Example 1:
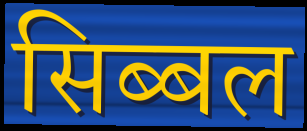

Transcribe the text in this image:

सिब्बल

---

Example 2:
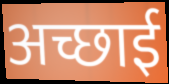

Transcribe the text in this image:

अच्छाई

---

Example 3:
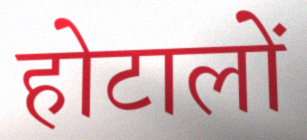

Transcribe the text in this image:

होटालों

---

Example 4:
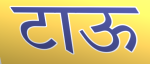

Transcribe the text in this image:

टाऊ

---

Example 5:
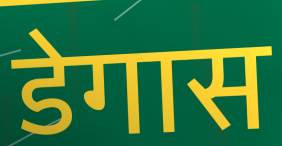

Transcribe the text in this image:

डेगास